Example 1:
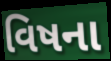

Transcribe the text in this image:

વિષના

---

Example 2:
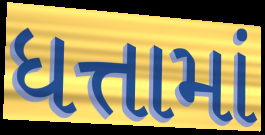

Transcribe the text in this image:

ધત્તામાં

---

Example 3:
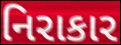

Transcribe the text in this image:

નિરાકાર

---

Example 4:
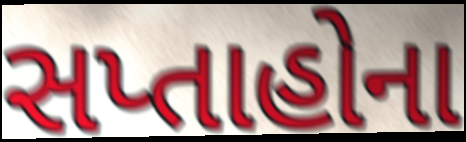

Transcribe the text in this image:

સપ્તાહોના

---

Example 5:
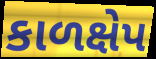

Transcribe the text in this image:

કાળક્ષેપ